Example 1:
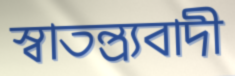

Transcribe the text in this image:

স্বাতন্ত্র্যবাদী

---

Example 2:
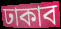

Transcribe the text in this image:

ঢাকাব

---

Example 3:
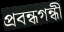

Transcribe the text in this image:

প্রবন্ধগন্ধী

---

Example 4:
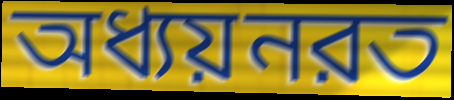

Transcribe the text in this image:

অধ্যয়নরত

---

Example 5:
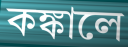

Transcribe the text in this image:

কঙ্কালে